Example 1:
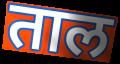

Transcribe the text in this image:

ताल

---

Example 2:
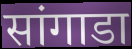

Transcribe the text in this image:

सांगाडा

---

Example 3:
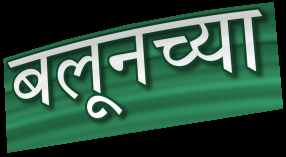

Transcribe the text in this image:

बलूनच्या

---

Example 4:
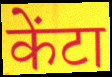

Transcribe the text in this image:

केंटा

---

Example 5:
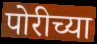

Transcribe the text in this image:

पोरीच्या